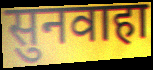
सुनवाहा